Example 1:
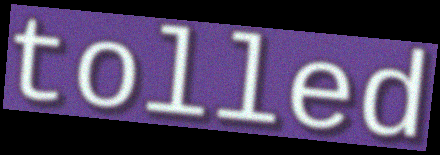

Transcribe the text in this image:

tolled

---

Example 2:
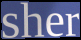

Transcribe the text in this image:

sher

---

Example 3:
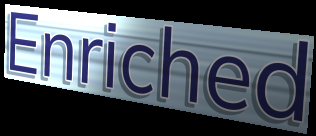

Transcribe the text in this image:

Enriched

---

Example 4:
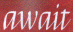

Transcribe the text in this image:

await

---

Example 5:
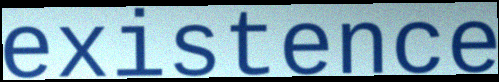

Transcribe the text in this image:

existence